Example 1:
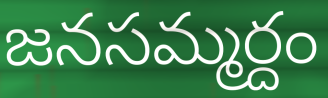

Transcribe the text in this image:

జనసమ్మర్దం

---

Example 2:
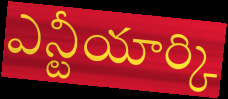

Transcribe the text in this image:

ఎన్టీయార్కి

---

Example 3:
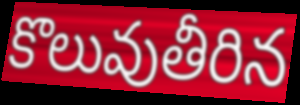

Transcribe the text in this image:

కొలువుతీరిన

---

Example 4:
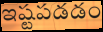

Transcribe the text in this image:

ఇష్టపడడం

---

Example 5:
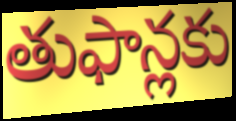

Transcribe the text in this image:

తుఫాన్లకు